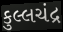
કુલ્લચંદ્ર